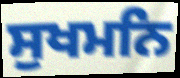
ਸੁਖਮਨਿ